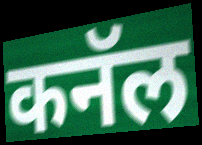
कनॅल